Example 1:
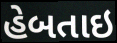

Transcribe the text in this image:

હેબતાઇ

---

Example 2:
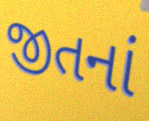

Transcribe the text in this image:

જીતનાં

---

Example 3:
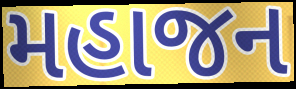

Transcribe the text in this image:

મહાજન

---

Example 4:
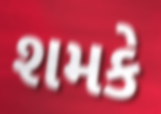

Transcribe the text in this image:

શમકે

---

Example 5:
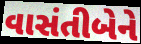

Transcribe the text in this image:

વાસંતીબેને